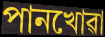
পানখোৱা